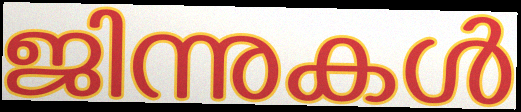
ജിന്നുകൾ